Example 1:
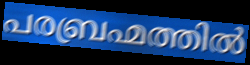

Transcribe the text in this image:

പരബ്രഹ്മത്തിൽ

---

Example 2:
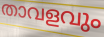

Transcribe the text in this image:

താവളവും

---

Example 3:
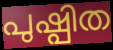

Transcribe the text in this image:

പുഷ്പിത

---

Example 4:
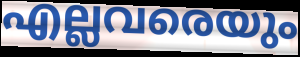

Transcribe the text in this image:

എല്ലവരെയും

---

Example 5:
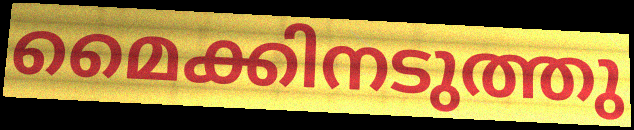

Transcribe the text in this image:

മൈക്കിനടുത്തു